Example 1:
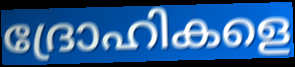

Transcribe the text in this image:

ദ്രോഹികളെ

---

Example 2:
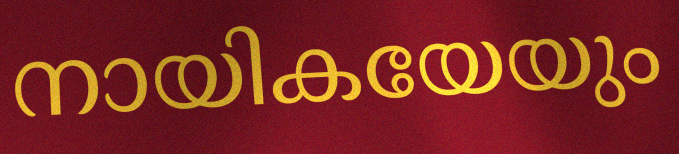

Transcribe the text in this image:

നായികയേയും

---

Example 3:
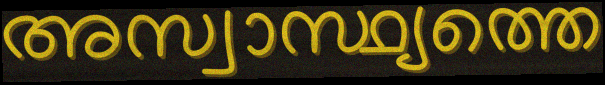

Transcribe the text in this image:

അസ്വാസ്ഥ്യത്തെ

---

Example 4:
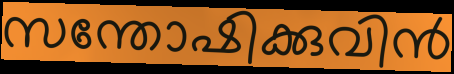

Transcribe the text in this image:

സന്തോഷിക്കുവിൻ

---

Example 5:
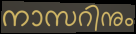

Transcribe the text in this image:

നാസറിനും